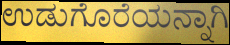
ಉಡುಗೊರೆಯನ್ನಾಗಿ